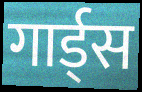
गार्ड्स